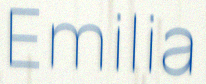
Emilia